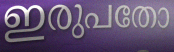
ഇരുപതോ